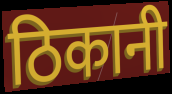
ठिकानी